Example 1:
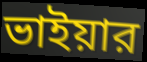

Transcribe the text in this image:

ভাইয়ার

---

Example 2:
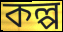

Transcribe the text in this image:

কল্প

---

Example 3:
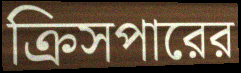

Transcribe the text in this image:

ক্রিসপারের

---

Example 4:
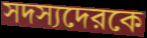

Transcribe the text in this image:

সদস্যদেরকে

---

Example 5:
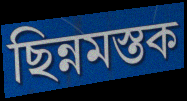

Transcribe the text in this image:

ছিন্নমস্তক